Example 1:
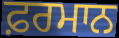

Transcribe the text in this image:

ਫ਼ਰਮਾਨ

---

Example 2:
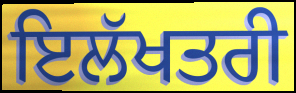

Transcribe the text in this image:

ਇਲੱਖਤਰੀ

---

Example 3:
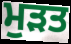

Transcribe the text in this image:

ਮੁੜਤ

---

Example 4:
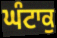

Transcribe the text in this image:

ਘੰਟਾਕੁ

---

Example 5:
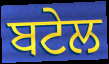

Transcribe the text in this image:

ਬਟੇਲ